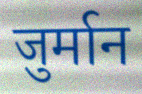
जुर्मान